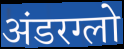
अंडरग्लो